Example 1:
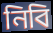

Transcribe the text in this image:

নিবি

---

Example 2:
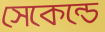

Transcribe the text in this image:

সেকেন্ডে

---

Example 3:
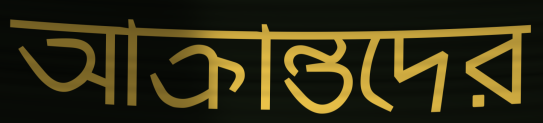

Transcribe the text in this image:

আক্রান্তদের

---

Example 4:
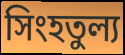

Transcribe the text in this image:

সিংহতুল্য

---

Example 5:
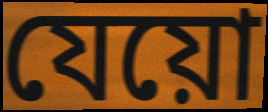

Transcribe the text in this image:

যেয়ো